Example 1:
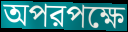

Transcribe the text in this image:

অপরপক্ষে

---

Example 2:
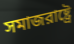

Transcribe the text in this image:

সমাজরাষ্ট্রে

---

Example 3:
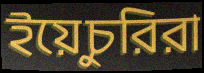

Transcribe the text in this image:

ইয়েচুরিরা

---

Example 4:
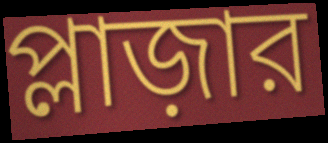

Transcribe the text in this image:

প্লাজ়ার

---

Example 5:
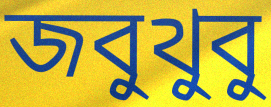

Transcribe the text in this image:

জবুথুবু